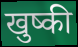
खुष्की